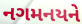
નગમનયને